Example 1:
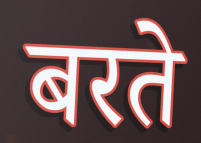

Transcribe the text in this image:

बरते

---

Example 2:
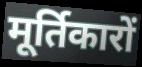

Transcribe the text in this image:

मूर्तिकारों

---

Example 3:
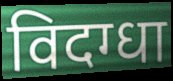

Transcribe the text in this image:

विदग्धा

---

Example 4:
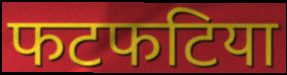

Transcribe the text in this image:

फटफटिया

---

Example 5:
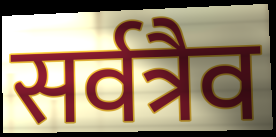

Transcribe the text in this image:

सर्वत्रैव